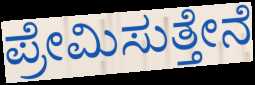
ಪ್ರೇಮಿಸುತ್ತೇನೆ